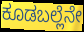
ಕೂಡಬಲ್ಲೆನೇ